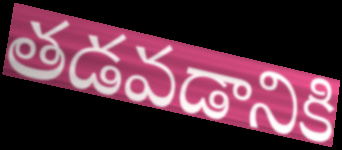
తడవడానికి